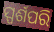
ସ୍ପର୍ଶପରି